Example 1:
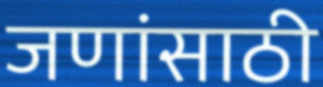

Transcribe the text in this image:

जणांसाठी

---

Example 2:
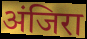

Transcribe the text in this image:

अंजिरा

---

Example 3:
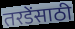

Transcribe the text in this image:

तरडेंसाठी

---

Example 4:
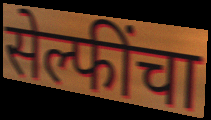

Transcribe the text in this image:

सेल्फींचा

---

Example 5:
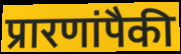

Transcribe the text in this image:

प्रारणांपैकी